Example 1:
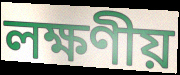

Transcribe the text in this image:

লক্ষণীয়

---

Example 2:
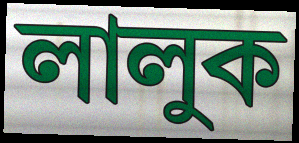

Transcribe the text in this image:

লালুক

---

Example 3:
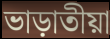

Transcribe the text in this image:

ভাড়াতীয়া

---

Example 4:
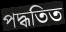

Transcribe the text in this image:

পদ্ধতিত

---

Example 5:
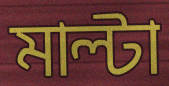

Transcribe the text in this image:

মাল্টা